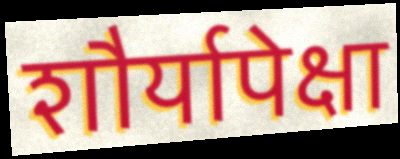
शौर्यापेक्षा